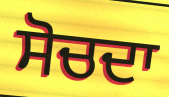
ਸੋਚਦਾ